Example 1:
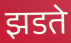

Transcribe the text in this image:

झडते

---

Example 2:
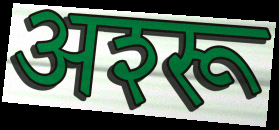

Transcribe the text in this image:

अश्रू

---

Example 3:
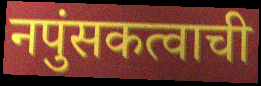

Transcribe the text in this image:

नपुंसकत्वाची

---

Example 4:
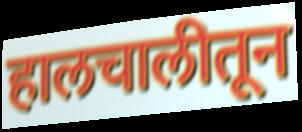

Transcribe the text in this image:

हालचालीतून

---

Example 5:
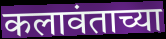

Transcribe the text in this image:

कलावंताच्या